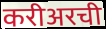
करीअरची